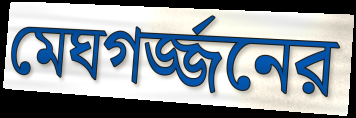
মেঘগর্জ্জনের